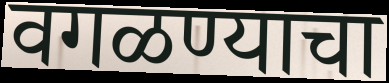
वगळण्याचा